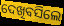
ଦେଖିବସିଲେ